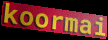
koormai